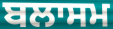
ਬਲਾਸਮ